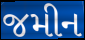
જમીન